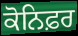
ਕੋਨਿਫ਼ਰ